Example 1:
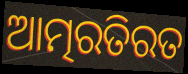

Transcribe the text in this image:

ଆତ୍ମରତିରତ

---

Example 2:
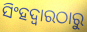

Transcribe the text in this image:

ସିଂହଦ୍ୱାରଠାରୁ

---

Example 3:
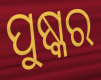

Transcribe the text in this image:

ପୁଷ୍କର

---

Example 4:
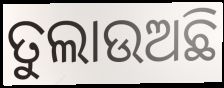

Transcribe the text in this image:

ତୁଲାଉଅଛି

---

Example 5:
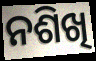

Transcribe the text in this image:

ନଶିଖି